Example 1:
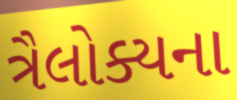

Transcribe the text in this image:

ત્રૈલોક્યના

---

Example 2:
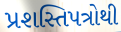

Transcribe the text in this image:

પ્રશસ્તિપત્રોથી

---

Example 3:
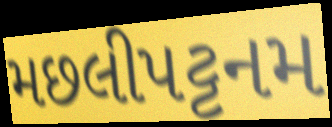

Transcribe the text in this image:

મછલીપટ્ટનમ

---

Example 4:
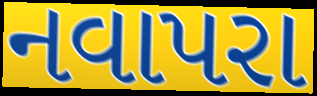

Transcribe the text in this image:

નવાપરા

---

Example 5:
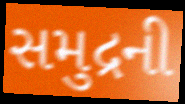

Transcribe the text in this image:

સમુદ્રની